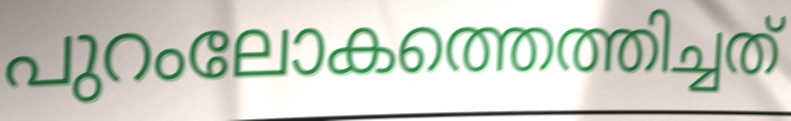
പുറംലോകത്തെത്തിച്ചത്